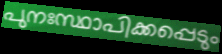
പുനഃസ്ഥാപിക്കപ്പെടും